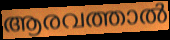
ആരവത്താൽ